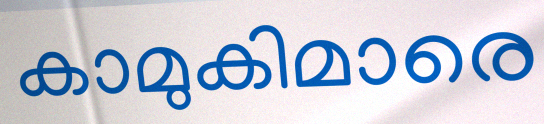
കാമുകിമാരെ